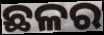
ଛଳର